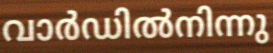
വാർഡിൽനിന്നു